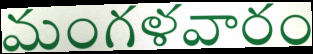
మంగళవారం